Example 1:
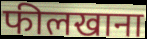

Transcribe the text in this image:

फीलखाना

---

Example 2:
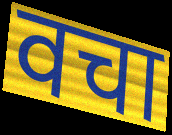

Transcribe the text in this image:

वचा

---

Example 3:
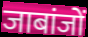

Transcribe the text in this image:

जाबांजों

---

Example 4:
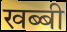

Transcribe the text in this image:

खब्बी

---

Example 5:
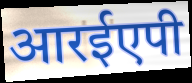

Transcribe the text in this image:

आरईएपी